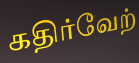
கதிர்வேற்